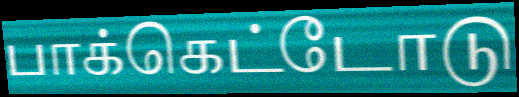
பாக்கெட்டோடு